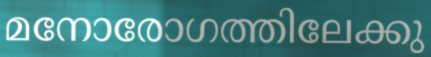
മനോരോഗത്തിലേക്കു